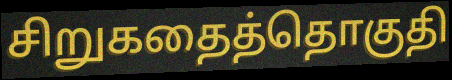
சிறுகதைத்தொகுதி